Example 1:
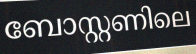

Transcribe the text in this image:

ബോസ്റ്റണിലെ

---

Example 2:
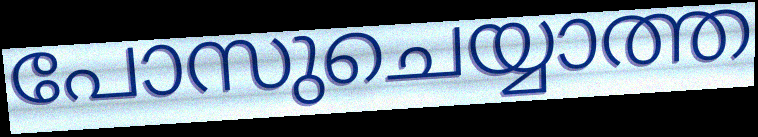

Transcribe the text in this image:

പോസുചെയ്യാത്ത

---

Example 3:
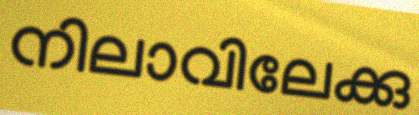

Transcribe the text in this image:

നിലാവിലേക്കു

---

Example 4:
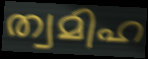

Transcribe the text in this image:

ത്വമിഹ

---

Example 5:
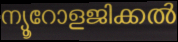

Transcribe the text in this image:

ന്യൂറോളജിക്കൽ